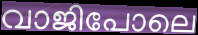
വാജിപോലെ